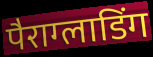
पैराग्लाडिंग